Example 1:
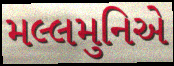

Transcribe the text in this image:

મલ્લમુનિએ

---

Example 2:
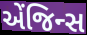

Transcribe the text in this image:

એંજિન્સ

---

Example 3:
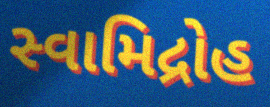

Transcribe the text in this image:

સ્વામિદ્રોહ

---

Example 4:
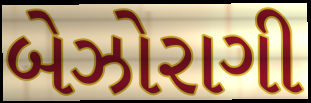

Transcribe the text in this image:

બેઝોરાગી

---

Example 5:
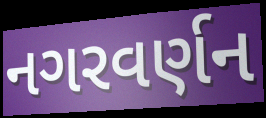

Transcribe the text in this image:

નગરવર્ણન